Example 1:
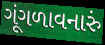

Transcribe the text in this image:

ગૂંગળાવનારું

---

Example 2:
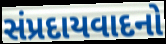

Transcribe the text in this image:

સંપ્રદાયવાદનો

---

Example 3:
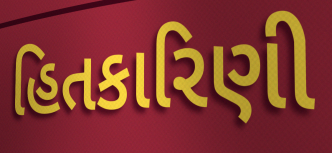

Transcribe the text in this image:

હિતકારિણી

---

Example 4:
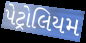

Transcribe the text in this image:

પેટ્રોલિયમ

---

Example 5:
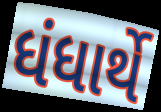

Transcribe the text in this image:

ધંધાર્થે